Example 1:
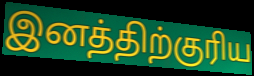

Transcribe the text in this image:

இனத்திற்குரிய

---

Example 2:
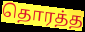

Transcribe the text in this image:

தொரத்த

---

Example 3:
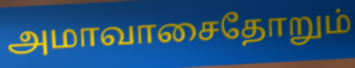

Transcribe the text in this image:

அமாவாசைதோறும்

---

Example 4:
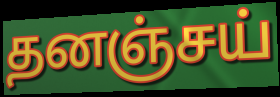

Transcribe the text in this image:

தனஞ்சய்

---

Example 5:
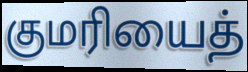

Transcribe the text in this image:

குமரியைத்